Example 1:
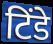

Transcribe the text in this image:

टिंडे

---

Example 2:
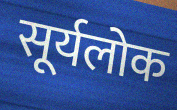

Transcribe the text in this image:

सूर्यलोक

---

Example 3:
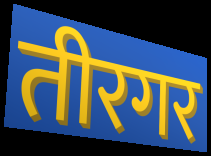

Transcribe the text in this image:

तीरगर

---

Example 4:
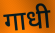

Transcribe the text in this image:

गाधी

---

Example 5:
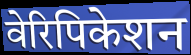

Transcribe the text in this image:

वेरिपिकेशन